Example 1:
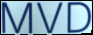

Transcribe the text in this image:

MVD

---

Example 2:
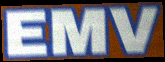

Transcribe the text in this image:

EMV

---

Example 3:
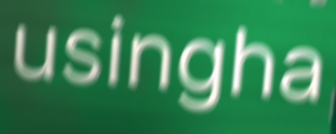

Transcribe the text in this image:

usingha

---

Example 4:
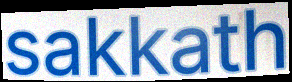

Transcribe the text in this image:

sakkath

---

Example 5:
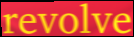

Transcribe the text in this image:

revolve